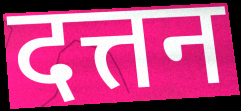
दत्तन